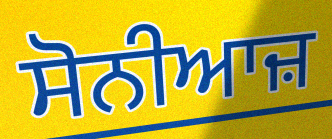
ਸੋਨੀਆਜ਼